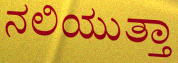
ನಲಿಯುತ್ತಾ